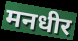
मनधीर